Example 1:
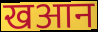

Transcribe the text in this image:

खआन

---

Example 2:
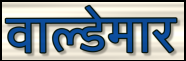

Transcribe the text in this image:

वाल्डेमार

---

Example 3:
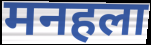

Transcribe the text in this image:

मनहला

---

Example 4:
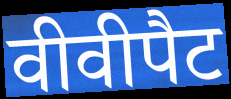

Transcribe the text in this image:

वीवीपैट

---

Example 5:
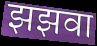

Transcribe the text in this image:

झझवा